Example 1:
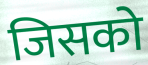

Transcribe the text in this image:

जिसको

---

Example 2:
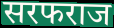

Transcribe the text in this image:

सरफराज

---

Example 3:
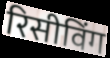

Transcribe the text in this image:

रिसीविंग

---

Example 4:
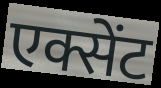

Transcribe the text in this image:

एक्सेंट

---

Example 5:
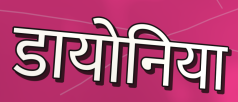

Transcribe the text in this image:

डायोनिया